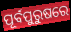
ପୂର୍ବପୁରୁଷରେ